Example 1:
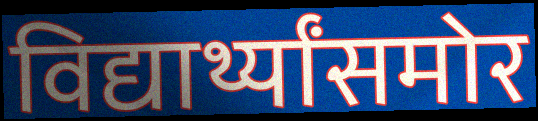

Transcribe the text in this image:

विद्यार्थ्यांसमोर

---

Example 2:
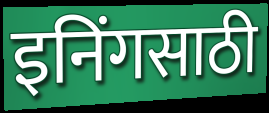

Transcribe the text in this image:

इनिंगसाठी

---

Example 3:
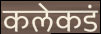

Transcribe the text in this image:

कलेकडं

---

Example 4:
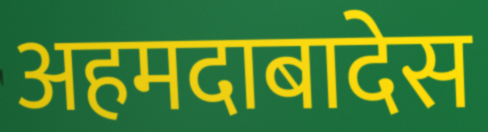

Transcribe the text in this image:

अहमदाबादेस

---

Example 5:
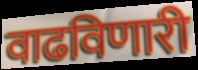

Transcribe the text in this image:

वाढविणारी